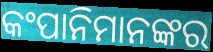
କଂପାନିମାନଙ୍କର